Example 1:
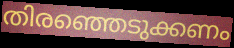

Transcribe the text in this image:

തിരഞ്ഞെടുക്കണം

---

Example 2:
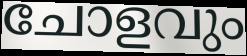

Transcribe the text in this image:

ചോളവും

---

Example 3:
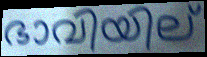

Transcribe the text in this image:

ഭാവിയില്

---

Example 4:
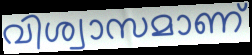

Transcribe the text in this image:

വിശ്വാസമാണ്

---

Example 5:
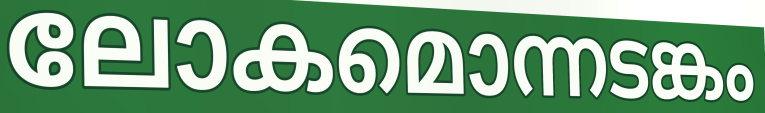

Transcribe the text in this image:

ലോകമൊന്നടങ്കം